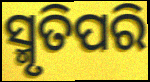
ସ୍ମୃତିପରି